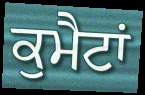
ਕੁਮੈਟਾਂ